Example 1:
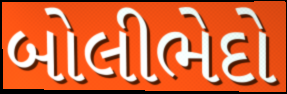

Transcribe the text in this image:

બોલીભેદો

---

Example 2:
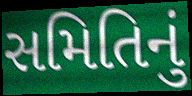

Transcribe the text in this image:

સમિતિનું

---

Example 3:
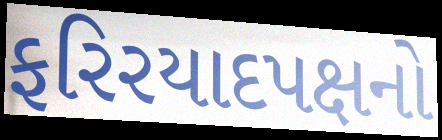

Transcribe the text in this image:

ફરિરયાદપક્ષનો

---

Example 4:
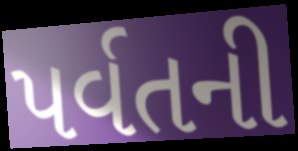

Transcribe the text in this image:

પર્વતની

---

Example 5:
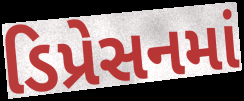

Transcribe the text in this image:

ડિપ્રેસનમાં